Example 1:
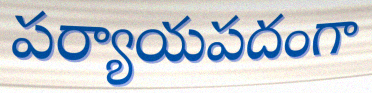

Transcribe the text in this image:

పర్యాయపదంగా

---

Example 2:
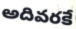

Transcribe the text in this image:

అదివరకే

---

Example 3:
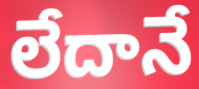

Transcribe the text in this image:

లేదానే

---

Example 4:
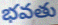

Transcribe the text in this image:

భవతు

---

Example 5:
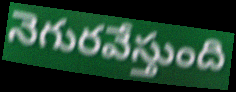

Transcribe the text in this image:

నెగురవేస్తుంది